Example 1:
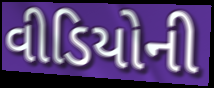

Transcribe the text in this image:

વીડિયોની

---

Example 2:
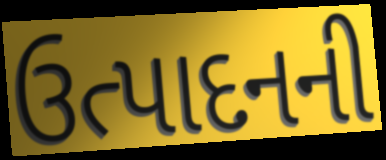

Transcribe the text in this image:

ઉત્પાદનની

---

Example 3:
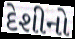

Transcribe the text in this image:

દેશીનો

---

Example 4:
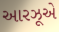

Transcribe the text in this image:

આરઝૂએ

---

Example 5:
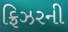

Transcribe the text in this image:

ફ્રિઝરની